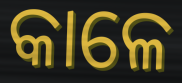
କାଳେ